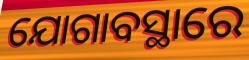
ଯୋଗାବସ୍ଥାରେ